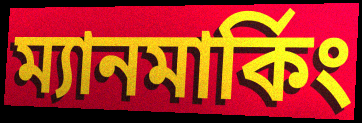
ম্যানমার্কিং